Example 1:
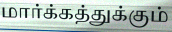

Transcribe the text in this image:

மார்க்கத்துக்கும்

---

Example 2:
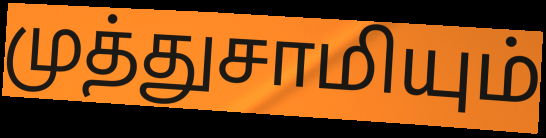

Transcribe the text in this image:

முத்துசாமியும்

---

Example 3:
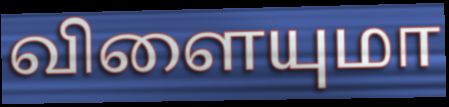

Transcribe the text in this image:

விளையுமா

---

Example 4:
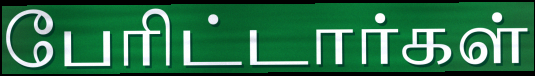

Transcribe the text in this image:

பேரிட்டார்கள்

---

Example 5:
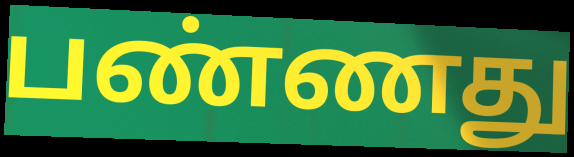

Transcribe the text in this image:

பண்ணது